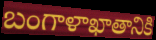
బంగాళాఖాతానికి